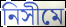
নিসীমে